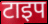
टाइप